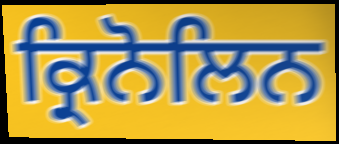
ਕ੍ਰਿਨੋਲਿਨ